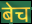
बेच